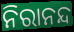
ନିରାନନ୍ଦ